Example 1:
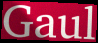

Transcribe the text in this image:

Gaul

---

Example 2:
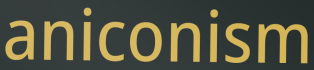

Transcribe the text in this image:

aniconism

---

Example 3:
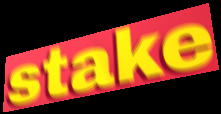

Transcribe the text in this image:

stake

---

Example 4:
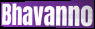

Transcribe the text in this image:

Bhavanno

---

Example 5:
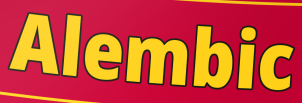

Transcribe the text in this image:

Alembic